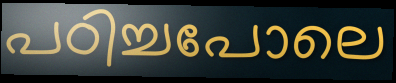
പഠിച്ചപോലെ